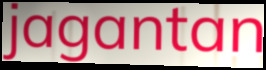
jagantan